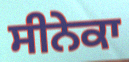
ਸੀਨੇਕਾ